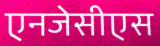
एनजेसीएस